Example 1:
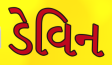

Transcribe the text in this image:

ડેવિન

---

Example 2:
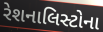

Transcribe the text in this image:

રેશનાલિસ્ટોના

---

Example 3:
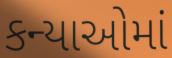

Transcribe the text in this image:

કન્યાઓમાં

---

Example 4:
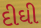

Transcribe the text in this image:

દીઘી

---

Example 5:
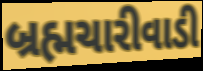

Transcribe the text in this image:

બ્રહ્મચારીવાડી